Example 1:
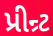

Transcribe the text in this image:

પ્રીન્ર્ટ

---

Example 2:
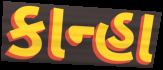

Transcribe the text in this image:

કાન્હા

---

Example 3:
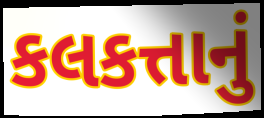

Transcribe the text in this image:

કલકત્તાનું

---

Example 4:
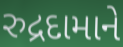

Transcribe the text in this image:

રુદ્રદામાને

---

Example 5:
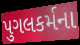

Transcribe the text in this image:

પુગલકર્મના